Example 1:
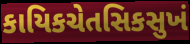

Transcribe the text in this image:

કાયિકચેતસિકસુખં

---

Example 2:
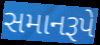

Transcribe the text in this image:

સમાનરૂપે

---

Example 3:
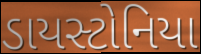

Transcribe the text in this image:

ડાયસ્ટોનિયા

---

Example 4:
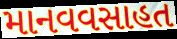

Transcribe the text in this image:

માનવવસાહત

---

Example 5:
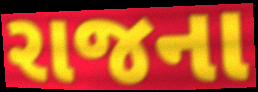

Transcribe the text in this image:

રાજના